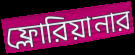
ফ্লোরিয়ানার